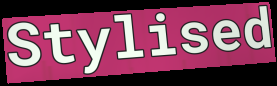
Stylised